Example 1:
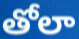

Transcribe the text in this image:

తోలా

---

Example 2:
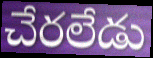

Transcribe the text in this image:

చేరలేడు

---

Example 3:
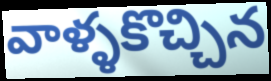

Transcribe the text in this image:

వాళ్ళకొచ్చిన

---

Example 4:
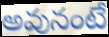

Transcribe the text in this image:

అవునంటే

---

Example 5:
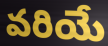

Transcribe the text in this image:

వరియే